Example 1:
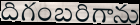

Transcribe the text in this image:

దిగంబరిగాను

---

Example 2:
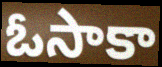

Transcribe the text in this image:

ఓసాకా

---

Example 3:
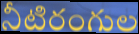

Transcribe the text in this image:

నీటిరంగుల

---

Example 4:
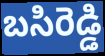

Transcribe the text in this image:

బసిరెడ్డి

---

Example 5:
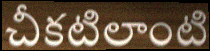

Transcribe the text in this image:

చీకటిలాంటి